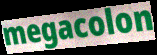
megacolon